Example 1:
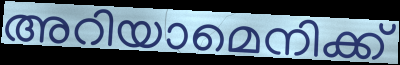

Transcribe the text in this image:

അറിയാമെനിക്ക്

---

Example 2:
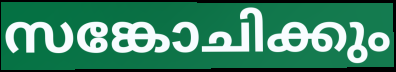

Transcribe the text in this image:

സങ്കോചിക്കും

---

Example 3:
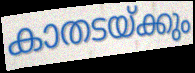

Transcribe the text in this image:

കാതടയ്ക്കും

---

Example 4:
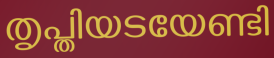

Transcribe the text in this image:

തൃപ്തിയടയേണ്ടി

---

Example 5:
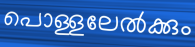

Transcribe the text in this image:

പൊള്ളലേൽക്കും